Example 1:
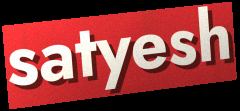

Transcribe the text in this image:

satyesh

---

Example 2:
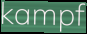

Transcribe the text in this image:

kampf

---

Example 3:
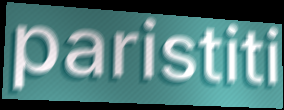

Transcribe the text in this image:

paristiti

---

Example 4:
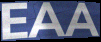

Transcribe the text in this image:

EAA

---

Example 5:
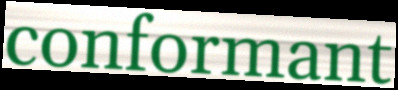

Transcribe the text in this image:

conformant